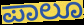
ಪಾಲೂ